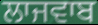
ਲਾਜਵਾਬ